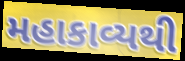
મહાકાવ્યથી